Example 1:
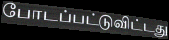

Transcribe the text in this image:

போடப்பட்டுவிட்டது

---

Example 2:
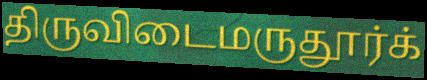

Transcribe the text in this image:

திருவிடைமருதூர்க்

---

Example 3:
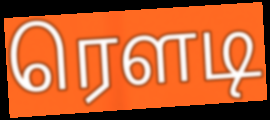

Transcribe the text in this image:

ரெளடி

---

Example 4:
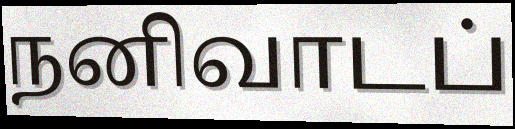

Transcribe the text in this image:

நனிவாடப்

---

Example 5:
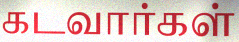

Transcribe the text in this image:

கடவார்கள்